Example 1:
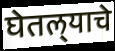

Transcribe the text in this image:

घेतल्याचे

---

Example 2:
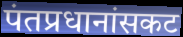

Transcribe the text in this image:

पंतप्रधानांसकट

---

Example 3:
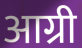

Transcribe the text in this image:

आग्री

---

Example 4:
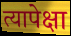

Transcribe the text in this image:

त्यापेक्षा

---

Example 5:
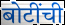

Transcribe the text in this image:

बोटींची